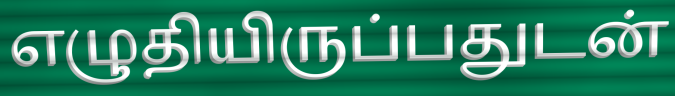
எழுதியிருப்பதுடன்